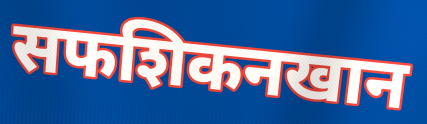
सफशिकनखान